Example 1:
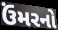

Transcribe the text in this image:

ઉંમરનો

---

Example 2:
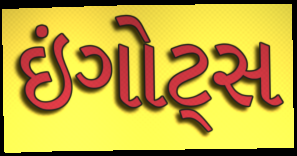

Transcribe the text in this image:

ઇંગોટ્સ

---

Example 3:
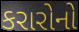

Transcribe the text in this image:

કરારોનો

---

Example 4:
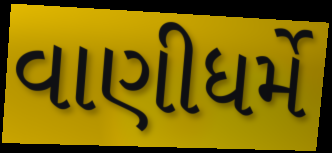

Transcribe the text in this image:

વાણીધર્મે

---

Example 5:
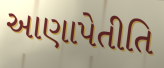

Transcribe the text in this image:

આણાપેતીતિ